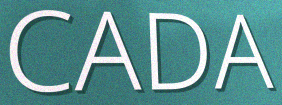
CADA